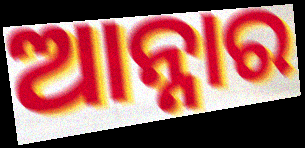
ଆନ୍ନାର